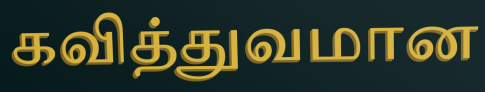
கவித்துவமான